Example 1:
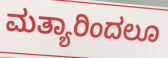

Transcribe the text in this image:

ಮತ್ಯಾರಿಂದಲೂ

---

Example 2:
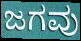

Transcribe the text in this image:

ಜಗವು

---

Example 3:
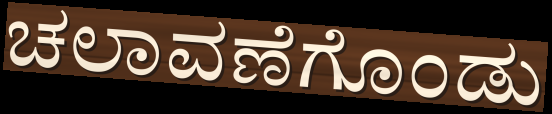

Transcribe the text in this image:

ಚಲಾವಣೆಗೊಂಡು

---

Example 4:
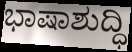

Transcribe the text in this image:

ಭಾಷಾಶುದ್ಧಿ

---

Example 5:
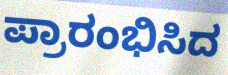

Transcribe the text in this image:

ಪ್ರಾರಂಭಿಸಿದ